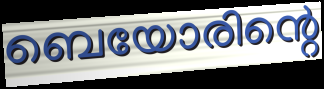
ബെയോരിന്റെ